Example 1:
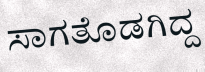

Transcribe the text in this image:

ಸಾಗತೊಡಗಿದ್ದ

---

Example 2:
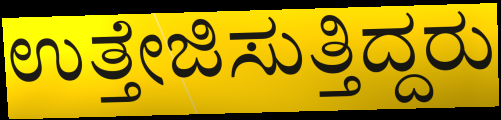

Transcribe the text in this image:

ಉತ್ತೇಜಿಸುತ್ತಿದ್ದರು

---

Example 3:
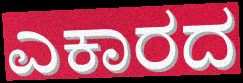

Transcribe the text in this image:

ಎಕಾರದ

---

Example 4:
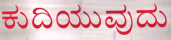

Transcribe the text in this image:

ಕುದಿಯುವುದು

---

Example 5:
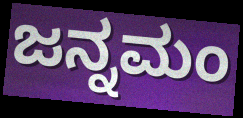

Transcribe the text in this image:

ಜನ್ನಮಂ